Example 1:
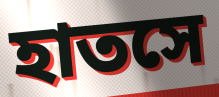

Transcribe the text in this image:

হাতসে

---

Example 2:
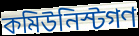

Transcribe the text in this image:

কমিউনিস্টগণ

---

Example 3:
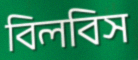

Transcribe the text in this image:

বিলবিস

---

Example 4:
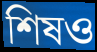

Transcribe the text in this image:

শিষও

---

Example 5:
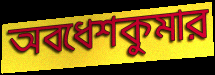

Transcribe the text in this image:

অবধেশকুমার